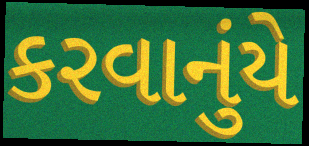
કરવાનુંયે